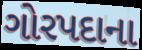
ગોરપદાના